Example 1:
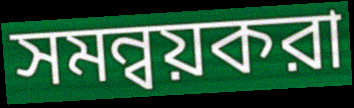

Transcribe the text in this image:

সমন্বয়করা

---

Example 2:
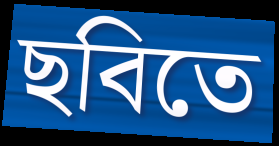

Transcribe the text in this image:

ছবিতে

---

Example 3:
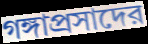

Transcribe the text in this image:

গঙ্গাপ্রসাদের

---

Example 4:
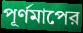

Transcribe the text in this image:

পূর্ণমাপের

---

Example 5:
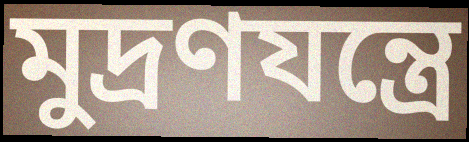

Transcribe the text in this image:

মুদ্রণযন্ত্রে